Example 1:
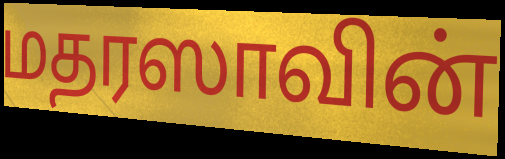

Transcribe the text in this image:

மதரஸாவின்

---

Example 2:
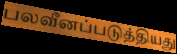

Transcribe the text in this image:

பலவீனப்படுத்தியது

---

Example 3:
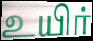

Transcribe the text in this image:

உயிர்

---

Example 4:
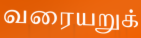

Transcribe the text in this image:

வரையறுக்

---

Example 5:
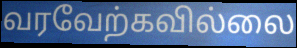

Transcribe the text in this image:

வரவேற்கவில்லை